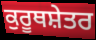
ਕੁਰੂਥਸ਼ੇਤਰ